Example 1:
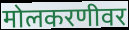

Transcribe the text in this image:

मोलकरणीवर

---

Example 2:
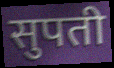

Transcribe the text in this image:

सुपती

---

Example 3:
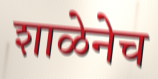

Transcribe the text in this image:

शाळेनेच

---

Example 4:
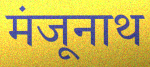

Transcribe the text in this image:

मंजूनाथ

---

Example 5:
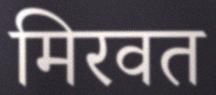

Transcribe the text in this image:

मिरवत